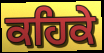
ਕਹਿਕੇ